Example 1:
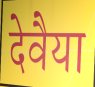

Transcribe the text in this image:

देवैया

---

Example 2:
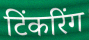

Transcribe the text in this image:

टिंकरिंग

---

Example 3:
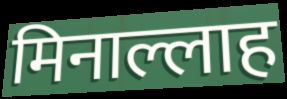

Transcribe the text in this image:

मिनाल्लाह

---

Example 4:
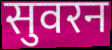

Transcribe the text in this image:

सुवरन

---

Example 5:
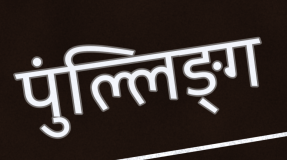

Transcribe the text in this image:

पुंल्लिङ्ग